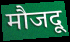
मौजदू